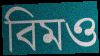
বিমও